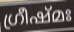
ഗ്രീഷ്മഃ